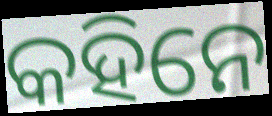
କହିନେ